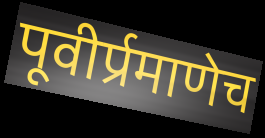
पूवीर्प्रमाणेच